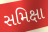
સમિક્ષા